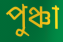
পুঞ্চা